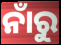
ନାଁରୁ